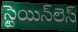
స్టెయిన్‌లెస్